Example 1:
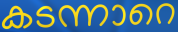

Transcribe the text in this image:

കടന്നാറെ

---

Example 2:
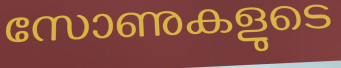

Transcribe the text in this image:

സോണുകളുടെ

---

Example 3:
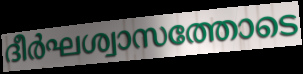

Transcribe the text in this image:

ദീർഘശ്വാസത്തോടെ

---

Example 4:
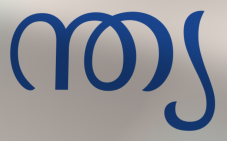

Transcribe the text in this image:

ന്ത്യ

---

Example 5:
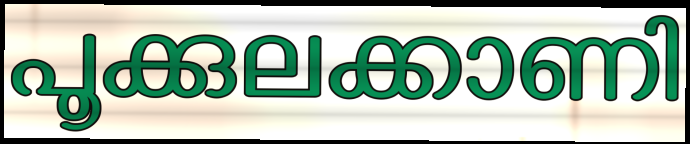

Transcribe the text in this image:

പൂക്കുലക്കാണി